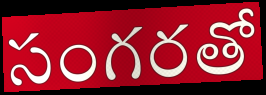
సంగరతో